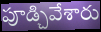
పూడ్చివేశారు